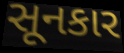
સૂનકાર